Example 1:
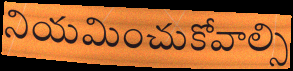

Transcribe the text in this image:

నియమించుకోవాల్సి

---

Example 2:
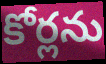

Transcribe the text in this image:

కోర్లను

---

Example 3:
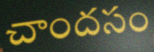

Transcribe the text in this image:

చాందసం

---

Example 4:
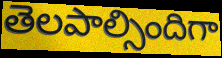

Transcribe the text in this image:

తెలపాల్సిందిగా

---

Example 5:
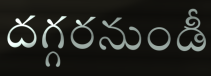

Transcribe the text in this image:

దగ్గరనుండీ